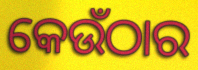
କେଉଁଠାର